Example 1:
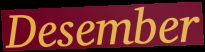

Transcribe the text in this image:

Desember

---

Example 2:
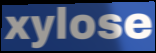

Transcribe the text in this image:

xylose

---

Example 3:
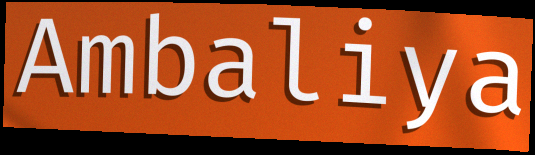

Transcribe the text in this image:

Ambaliya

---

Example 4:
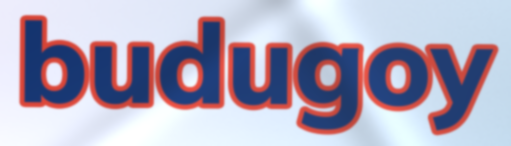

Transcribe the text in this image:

budugoy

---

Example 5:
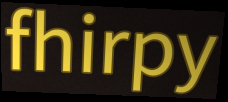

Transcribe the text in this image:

fhirpy